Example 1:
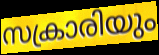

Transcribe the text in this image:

സക്രാരിയും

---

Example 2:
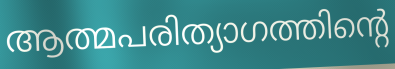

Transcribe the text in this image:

ആത്മപരിത്യാഗത്തിന്റെ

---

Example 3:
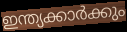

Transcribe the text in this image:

ഇന്ത്യക്കാർക്കും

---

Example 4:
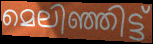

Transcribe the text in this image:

മെലിഞ്ഞിട്ട്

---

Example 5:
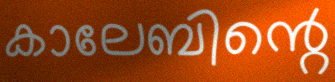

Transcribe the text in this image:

കാലേബിന്റെ